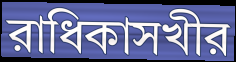
রাধিকাসখীর